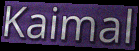
Kaimal